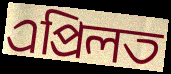
এপ্ৰিলত